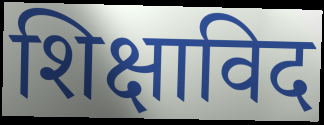
शिक्षाविद